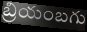
బ్రియంబగు